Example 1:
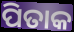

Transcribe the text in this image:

ପିତାକ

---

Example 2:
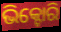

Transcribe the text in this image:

ଭିକ୍ଟୋରି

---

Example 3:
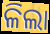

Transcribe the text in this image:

ଳିଲା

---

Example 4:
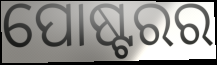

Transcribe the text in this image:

ପୋଷ୍ଟରର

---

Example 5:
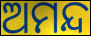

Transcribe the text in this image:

ଅମନ୍ଦ